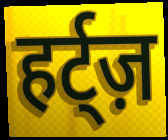
हर्ट्ज़